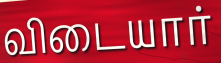
விடையார்